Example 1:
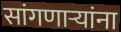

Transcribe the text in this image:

सांगणार्‍यांना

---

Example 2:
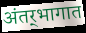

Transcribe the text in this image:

अंतर्भागात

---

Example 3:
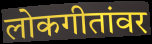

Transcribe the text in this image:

लोकगीतांवर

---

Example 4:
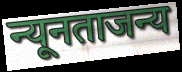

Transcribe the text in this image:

न्यूनताजन्य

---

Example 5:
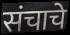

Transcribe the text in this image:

संचाचे